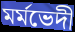
মৰ্মভেদী